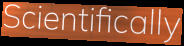
Scientifically